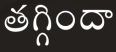
తగ్గిందా